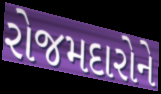
રોજમદારોને